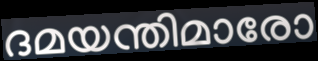
ദമയന്തിമാരോ